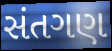
સંતગણ